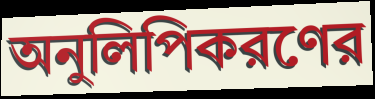
অনুলিপিকরণের